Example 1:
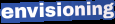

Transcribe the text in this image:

envisioning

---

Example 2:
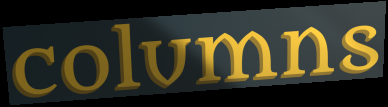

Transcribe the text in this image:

columns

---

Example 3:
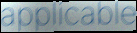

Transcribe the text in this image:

applicable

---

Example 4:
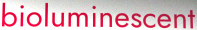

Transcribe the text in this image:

bioluminescent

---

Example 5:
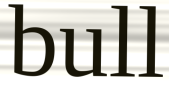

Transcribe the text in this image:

bull